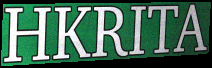
HKRITA